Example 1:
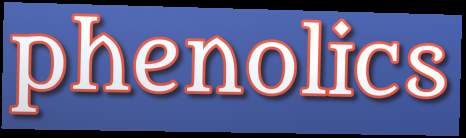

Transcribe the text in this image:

phenolics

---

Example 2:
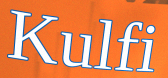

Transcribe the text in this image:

Kulfi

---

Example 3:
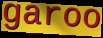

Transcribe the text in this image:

garoo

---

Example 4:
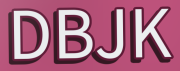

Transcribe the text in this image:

DBJK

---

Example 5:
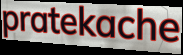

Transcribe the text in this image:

pratekache